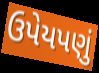
ઉપેયપણું